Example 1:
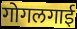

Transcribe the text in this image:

गोगलगाई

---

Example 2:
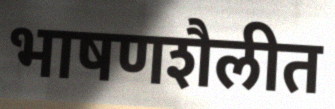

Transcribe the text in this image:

भाषणशैलीत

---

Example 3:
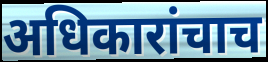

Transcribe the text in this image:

अधिकारांचाच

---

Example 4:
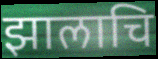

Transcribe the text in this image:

झालाचि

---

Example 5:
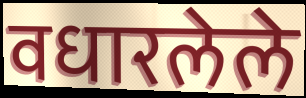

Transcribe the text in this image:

वधारलेले